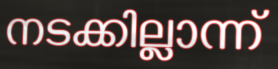
നടക്കില്ലാന്ന്